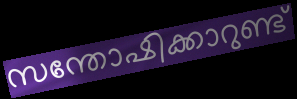
സന്തോഷിക്കാറുണ്ട്